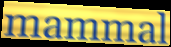
mammal